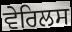
ਵੇਰਿਲਸ